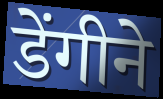
डेंगीने